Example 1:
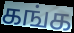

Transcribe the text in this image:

கங்க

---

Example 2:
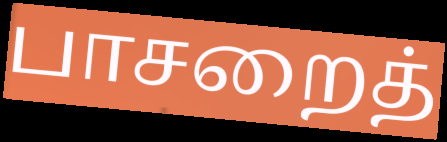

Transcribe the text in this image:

பாசறைத்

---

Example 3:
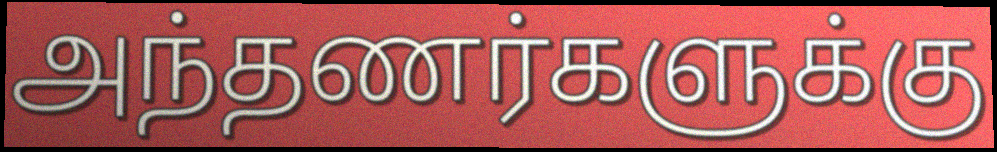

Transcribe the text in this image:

அந்தணர்களுக்கு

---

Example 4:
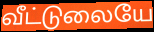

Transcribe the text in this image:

வீட்டுலையே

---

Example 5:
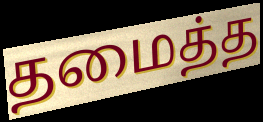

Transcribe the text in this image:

தமைத்த